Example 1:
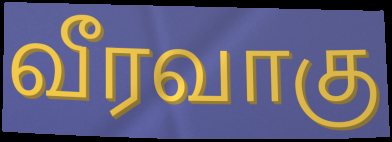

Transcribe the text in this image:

வீரவாகு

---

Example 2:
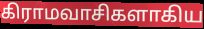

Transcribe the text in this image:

கிராமவாசிகளாகிய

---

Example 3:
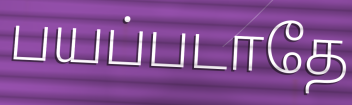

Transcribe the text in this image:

பயப்படாதே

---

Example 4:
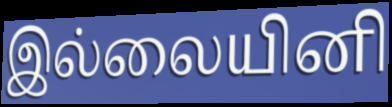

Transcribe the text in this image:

இல்லையினி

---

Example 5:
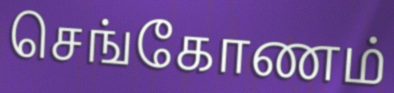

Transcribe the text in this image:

செங்கோணம்